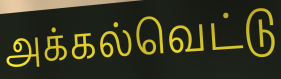
அக்கல்வெட்டு